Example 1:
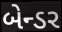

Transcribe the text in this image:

બેન્ડર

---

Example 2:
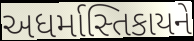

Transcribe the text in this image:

અધર્માસ્તિકાયને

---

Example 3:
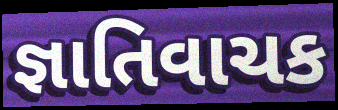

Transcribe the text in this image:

જ્ઞાતિવાચક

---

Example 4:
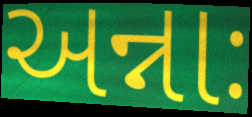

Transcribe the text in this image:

અન્નાઃ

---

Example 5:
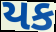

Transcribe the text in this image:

યક